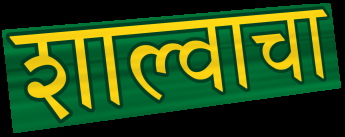
शाल्वाचा